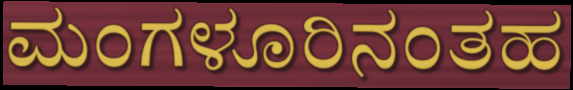
ಮಂಗಳೂರಿನಂತಹ